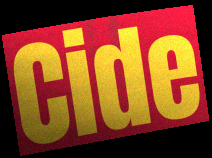
Cide